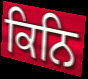
ਕਿਨਿ